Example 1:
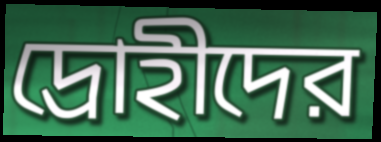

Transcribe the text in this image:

দ্রোহীদের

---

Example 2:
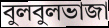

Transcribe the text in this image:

বুলবুলভাজা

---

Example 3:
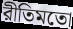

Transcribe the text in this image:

রীতিমতো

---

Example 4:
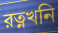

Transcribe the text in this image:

রত্নখনি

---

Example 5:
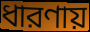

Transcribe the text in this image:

ধারণায়